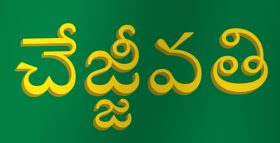
చేజ్జీవతి